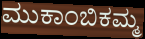
ಮುಕಾಂಬಿಕಮ್ಮ